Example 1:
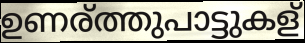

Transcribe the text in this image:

ഉണര്ത്തുപാട്ടുകള്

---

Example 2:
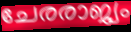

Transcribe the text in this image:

ചേരരാജ്യം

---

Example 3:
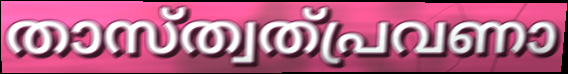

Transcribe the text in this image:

താസ്ത്വത്പ്രവണാ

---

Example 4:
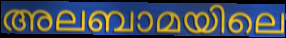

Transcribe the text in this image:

അലബാമയിലെ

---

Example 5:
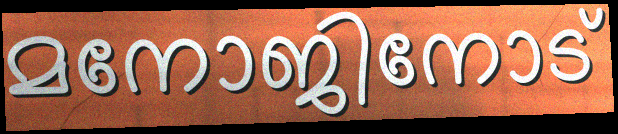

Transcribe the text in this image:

മനോജിനോട്